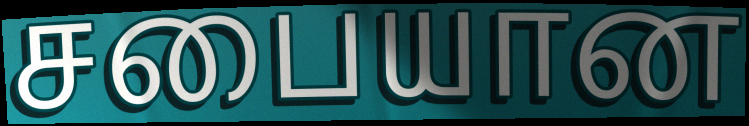
சபையான